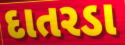
દાતરડા